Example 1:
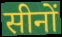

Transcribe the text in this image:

सीनों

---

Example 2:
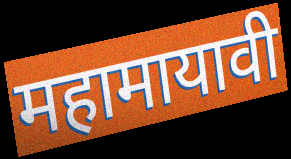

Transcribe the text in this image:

महामायावी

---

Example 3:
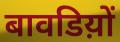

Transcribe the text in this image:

बावडिय़ों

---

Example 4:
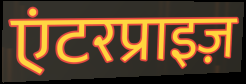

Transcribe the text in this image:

एंटरप्राइज़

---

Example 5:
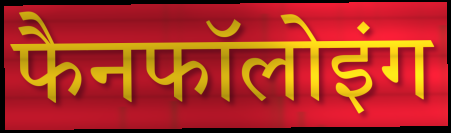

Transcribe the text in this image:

फैनफॉलोइंग